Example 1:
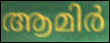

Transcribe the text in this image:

ആമിർ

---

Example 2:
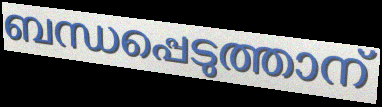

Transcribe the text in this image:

ബന്ധപ്പെടുത്താന്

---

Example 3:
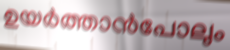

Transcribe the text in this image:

ഉയർത്താൻപോലും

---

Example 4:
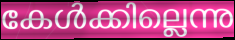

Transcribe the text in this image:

കേൾക്കില്ലെന്നു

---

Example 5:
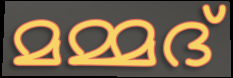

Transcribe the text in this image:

മമ്മദ്